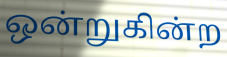
ஒன்றுகின்ற